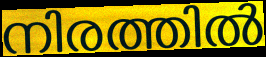
നിരത്തിൽ